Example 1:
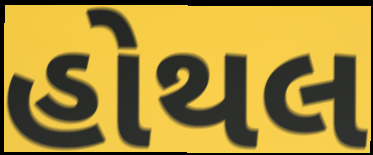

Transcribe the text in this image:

હોથલ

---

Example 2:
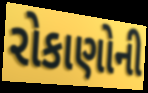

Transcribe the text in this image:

રોકાણોની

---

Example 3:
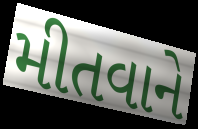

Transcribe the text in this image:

મીતવાને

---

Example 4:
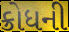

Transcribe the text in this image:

ક્રોધની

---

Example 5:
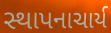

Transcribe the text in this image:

સ્થાપનાચાર્ય